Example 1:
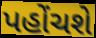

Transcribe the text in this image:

પહોંચશે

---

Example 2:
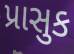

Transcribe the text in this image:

પ્રાસુક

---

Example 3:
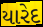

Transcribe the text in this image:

યારેદ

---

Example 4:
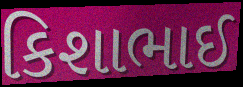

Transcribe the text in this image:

કિશાભાઈ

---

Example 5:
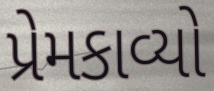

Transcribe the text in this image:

પ્રેમકાવ્યો